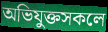
অভিযুক্তসকলে